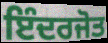
ਇੰਦਰਜੋਤ